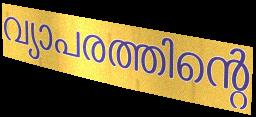
വ്യാപരത്തിന്റെ